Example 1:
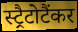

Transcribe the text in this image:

स्ट्रैटोटैंकर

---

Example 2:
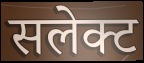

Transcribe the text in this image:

सलेक्ट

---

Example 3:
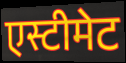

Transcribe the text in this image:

एस्‍टीमेट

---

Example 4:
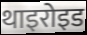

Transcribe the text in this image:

थाइरोइड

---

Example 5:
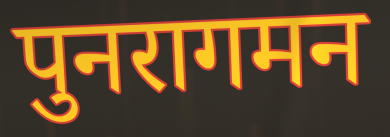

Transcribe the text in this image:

पुनरागमन